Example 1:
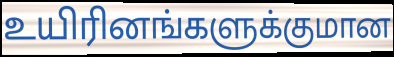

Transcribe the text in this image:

உயிரினங்களுக்குமான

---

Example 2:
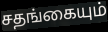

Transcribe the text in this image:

சதங்கையும்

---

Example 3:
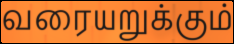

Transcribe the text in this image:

வரையறுக்கும்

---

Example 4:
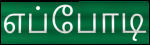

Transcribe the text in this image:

எப்போடி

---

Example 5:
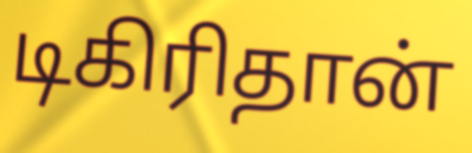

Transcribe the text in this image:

டிகிரிதான்